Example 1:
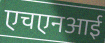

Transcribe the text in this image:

एचएनआई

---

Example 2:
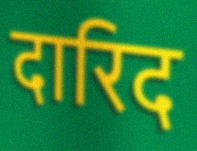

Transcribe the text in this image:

दारिद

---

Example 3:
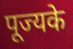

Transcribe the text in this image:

पूज्यके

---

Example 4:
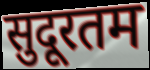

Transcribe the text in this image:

सुदूरतम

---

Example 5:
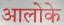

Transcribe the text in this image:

आलोके